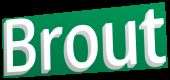
Brout